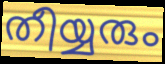
തീയ്യരും